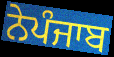
ਨੇਪੰਜਾਬ